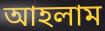
আহলাম